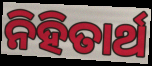
ନିହିତାର୍ଥ